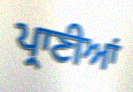
ਪ੍ਰਾਣੀਆਂ